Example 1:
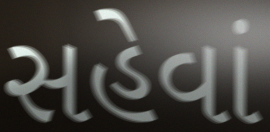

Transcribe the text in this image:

સહેવાં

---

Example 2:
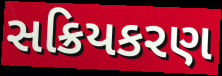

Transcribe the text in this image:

સક્રિયકરણ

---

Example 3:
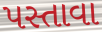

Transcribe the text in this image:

પસ્તાવા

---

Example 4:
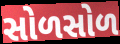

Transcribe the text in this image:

સોળસોળ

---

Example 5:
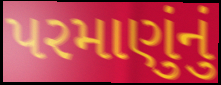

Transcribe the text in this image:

પરમાણુંનું